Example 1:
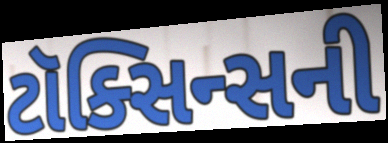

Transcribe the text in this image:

ટૉક્સિન્સની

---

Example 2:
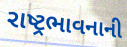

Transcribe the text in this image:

રાષ્ટ્રભાવનાની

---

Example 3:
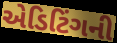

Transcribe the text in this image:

એડિટિંગની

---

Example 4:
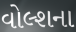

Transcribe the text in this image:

વોલ્શના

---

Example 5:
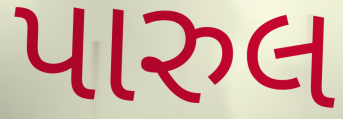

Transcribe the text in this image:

પારુલ